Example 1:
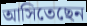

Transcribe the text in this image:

আসিতেছেন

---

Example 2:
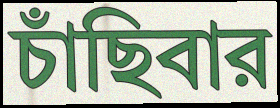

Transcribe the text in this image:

চাঁছিবার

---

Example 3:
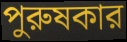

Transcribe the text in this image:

পুরুষকার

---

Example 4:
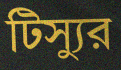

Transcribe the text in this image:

টিস্যুর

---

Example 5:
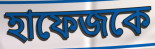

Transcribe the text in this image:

হাফেজকে